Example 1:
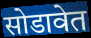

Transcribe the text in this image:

सोडावेत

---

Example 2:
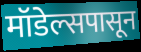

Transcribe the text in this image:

मॉडेल्सपासून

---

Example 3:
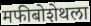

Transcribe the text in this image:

मफीबोशेथला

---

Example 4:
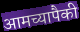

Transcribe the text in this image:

आमच्यापैकी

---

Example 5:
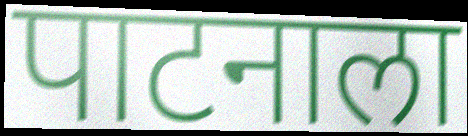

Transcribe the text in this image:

पाटनाला